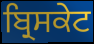
ਬ੍ਰਿਸਕੇਟ